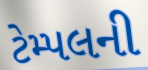
ટેમ્પલની